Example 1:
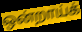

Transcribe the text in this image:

ஒன்றாய்க்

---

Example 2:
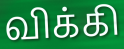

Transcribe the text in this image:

விக்கி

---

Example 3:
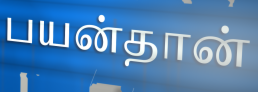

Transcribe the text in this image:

பயன்தான்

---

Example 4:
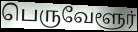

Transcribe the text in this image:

பெருவேளூர்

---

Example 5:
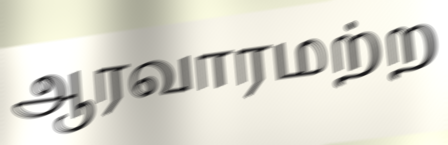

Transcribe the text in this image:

ஆரவாரமற்ற